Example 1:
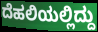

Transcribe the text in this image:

ದೆಹಲಿಯಲ್ಲಿದ್ದು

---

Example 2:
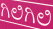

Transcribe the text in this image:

ಗಿಲಿಗಿಲಿ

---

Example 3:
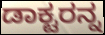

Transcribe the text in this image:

ಡಾಕ್ಟರನ್ನ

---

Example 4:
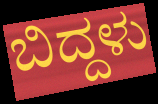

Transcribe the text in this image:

ಬಿದ್ದಳು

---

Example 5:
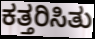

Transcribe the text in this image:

ಕತ್ತರಿಸಿತು